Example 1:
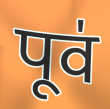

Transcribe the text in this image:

पूव॑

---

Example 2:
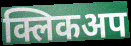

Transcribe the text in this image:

क्लिकअप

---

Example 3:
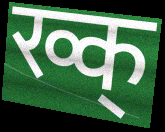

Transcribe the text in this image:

ख्क्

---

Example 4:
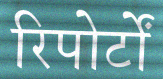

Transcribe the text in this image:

रिपोर्टों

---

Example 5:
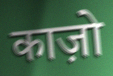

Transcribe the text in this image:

काज़ो